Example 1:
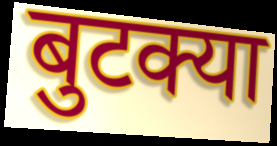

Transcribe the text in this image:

बुटक्या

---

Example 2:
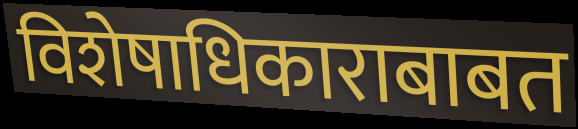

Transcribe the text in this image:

विशेषाधिकाराबाबत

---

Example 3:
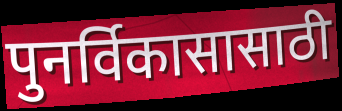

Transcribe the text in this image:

पुनर्विकासासाठी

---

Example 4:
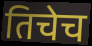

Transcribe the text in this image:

तिचेच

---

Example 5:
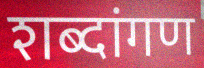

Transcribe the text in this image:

शब्दांगण